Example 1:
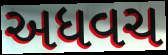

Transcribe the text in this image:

અધવચ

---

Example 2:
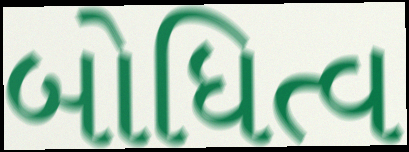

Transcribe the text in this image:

બોધિત્વ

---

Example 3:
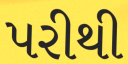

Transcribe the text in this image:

પરીથી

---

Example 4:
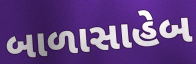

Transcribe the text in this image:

બાળાસાહેબ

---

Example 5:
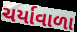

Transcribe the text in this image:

ચર્યાવાળા